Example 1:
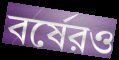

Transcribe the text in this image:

বর্ষেরও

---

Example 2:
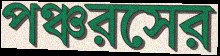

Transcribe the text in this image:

পঞ্চরসের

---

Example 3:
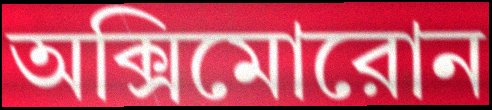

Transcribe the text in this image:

অক্সিমোরোন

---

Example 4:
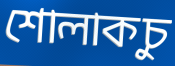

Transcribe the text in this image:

শোলাকচু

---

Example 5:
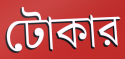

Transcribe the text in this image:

টোকার